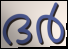
ദർ